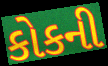
કોકની